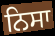
ਨਿਸਾ